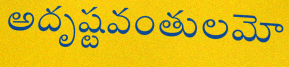
అదృష్టవంతులమో